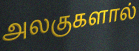
அலகுகளால்